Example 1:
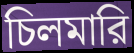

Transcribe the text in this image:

চিলমারি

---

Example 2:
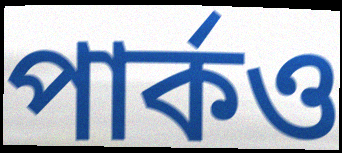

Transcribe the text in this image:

পার্কও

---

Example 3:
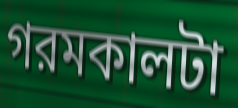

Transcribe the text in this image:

গরমকালটা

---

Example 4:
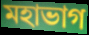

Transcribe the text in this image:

মহাভাগ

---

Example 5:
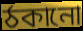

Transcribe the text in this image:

ঠকানো